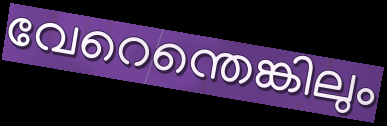
വേറെന്തെങ്കിലും